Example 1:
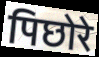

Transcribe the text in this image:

पिछोरे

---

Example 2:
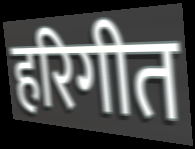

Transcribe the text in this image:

हरिगीत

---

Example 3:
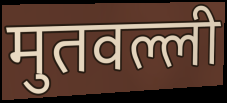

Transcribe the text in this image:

मुतवल्ली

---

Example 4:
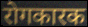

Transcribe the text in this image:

रोगकारक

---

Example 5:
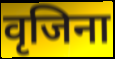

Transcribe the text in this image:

वृजिना